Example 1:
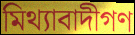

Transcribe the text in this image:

মিথ্যাবাদীগণ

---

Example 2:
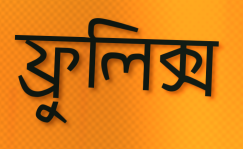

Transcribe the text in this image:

ফ্রুলিক্স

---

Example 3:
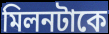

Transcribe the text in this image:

মিলনটাকে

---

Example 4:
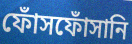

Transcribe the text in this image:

ফোঁসফোঁসানি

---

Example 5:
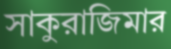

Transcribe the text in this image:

সাকুরাজিমার